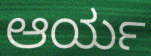
ಆರ್ಯ